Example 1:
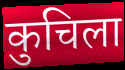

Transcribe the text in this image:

कुचिला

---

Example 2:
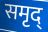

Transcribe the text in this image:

समृद्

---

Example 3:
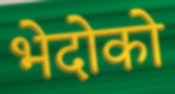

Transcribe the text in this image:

भेदोको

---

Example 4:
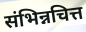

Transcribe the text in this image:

संभिन्नचित्त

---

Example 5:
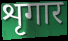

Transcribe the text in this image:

शृगार